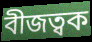
বীজত্বক